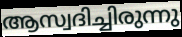
ആസ്വദിച്ചിരുന്നു